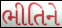
ભીતિને